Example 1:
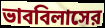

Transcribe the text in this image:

ভাববিলাসের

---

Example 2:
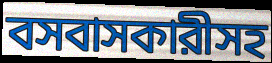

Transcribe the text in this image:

বসবাসকারীসহ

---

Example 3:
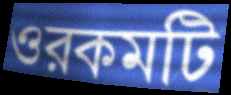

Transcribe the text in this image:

ওরকমটি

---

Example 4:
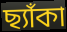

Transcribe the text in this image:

ছ্যাঁকা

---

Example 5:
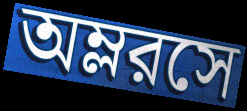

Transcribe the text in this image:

অম্লরসে